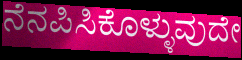
ನೆನಪಿಸಿಕೊಳ್ಳುವುದೇ